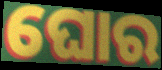
ଘୋର